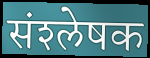
संश्लेषक